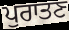
ਪੁਰਾਤਣ